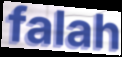
falah